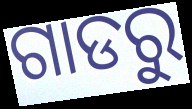
ଗାଡରୁ